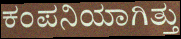
ಕಂಪನಿಯಾಗಿತ್ತು